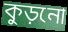
কুড়নো